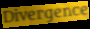
Divergence